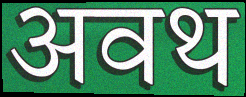
अवथ